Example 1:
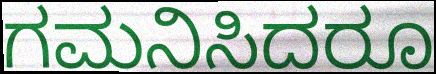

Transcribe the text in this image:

ಗಮನಿಸಿದರೂ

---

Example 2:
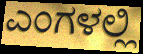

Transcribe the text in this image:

ಎಂಗಳಲ್ಲಿ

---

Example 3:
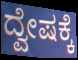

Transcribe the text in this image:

ದ್ವೇಷಕ್ಕೆ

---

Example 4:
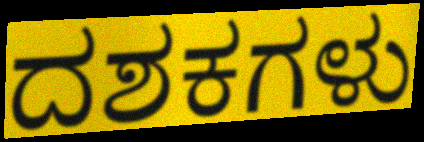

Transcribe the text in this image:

ದಶಕಗಳು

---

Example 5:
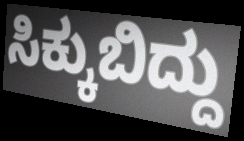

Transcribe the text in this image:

ಸಿಕ್ಕುಬಿದ್ದು